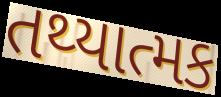
તથ્યાત્મક